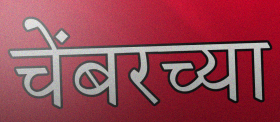
चेंबरच्या